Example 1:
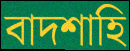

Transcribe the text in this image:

বাদশাহি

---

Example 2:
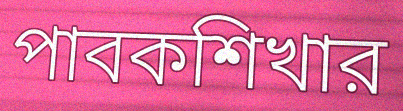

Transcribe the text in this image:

পাবকশিখার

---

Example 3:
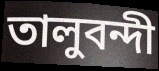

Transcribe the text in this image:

তালুবন্দী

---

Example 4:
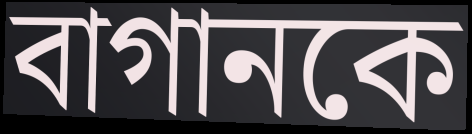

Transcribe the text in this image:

বাগানকে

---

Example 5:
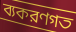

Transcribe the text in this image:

ব্যকরণগত